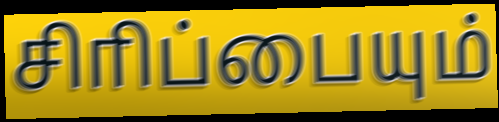
சிரிப்பையும்